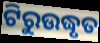
ଟିରୁଉଦ୍ଧୃତ